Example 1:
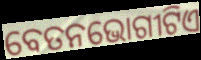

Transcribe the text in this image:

ବେତନଭୋଗୀଟିଏ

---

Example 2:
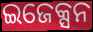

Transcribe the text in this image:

ଇଜେକ୍ସନ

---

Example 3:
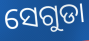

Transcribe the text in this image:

ସେଗୁଡା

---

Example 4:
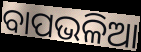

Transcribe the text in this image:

ବାପଭଳିଆ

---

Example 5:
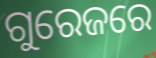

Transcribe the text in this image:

ଗୁରେଜରେ